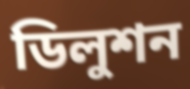
ডিলুশন